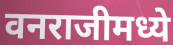
वनराजीमध्ये